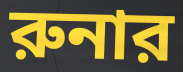
রুনার